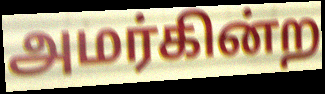
அமர்கின்ற